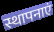
स्थापनाएं